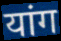
यांग